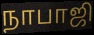
நாபாஜி